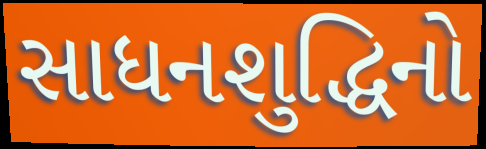
સાધનશુદ્ધિનો